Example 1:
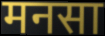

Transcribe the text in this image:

मनसा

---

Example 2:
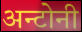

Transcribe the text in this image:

अन्टोनी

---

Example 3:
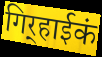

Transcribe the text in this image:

गिर्हाईकं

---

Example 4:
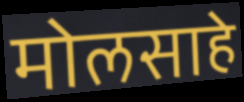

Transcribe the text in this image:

मोलसाहे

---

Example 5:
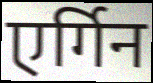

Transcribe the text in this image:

एर्गिन